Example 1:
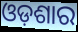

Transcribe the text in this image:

ଓଡ଼ଶାର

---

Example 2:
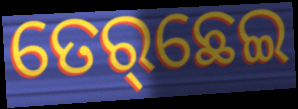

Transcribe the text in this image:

ତେର୍‌ଛେଇ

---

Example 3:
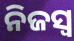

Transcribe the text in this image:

ନିଜସ୍ଵ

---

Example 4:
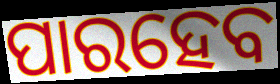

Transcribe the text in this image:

ପାରହେବ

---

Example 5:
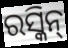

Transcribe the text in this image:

ରସ୍କିନ୍